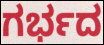
ಗರ್ಭದ